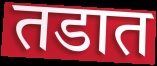
तडात